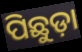
ପିଛୁଡ଼ା